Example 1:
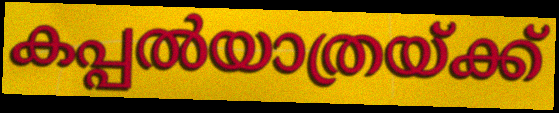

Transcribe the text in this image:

കപ്പൽയാത്രയ്ക്ക്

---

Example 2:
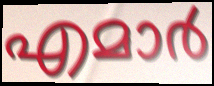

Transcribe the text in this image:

എമാർ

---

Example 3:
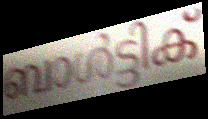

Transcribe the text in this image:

ബാൾട്ടിക്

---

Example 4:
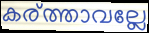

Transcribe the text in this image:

കര്ത്താവല്ലേ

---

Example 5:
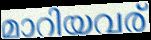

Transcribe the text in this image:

മാറിയവര്